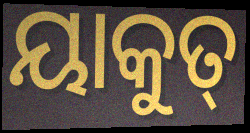
ୟାକୁତ୍